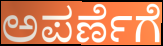
ಅಪರ್ಣೆಗೆ